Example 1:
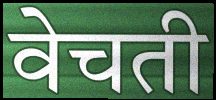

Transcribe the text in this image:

वेचती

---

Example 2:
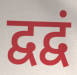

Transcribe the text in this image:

द्वद्वं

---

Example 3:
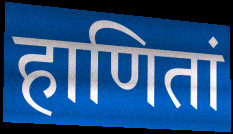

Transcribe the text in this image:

हाणितां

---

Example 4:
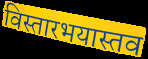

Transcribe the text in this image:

विस्तारभयास्तव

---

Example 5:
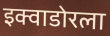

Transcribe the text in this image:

इक्वाडोरला